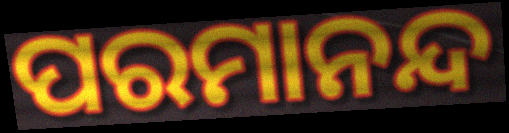
ପରମାନନ୍ଦ